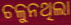
ଚଳୁନଥିଲା